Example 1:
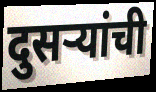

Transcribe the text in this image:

दुसऱ्यांची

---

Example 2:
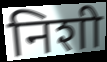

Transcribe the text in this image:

निशी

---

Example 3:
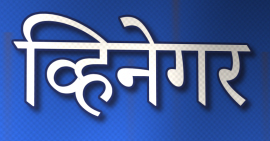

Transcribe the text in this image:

व्हिनेगर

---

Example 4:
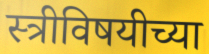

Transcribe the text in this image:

स्त्रीविषयीच्या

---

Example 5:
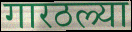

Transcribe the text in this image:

गारठल्या